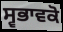
ਸ੍ਵਭਾਵਕੋ